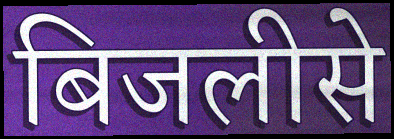
बिजलीसे